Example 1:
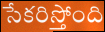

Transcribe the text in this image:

సేకరిస్తోంది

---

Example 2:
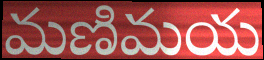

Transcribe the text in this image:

మణిమయ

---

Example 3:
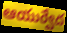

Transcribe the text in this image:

ఆయుర్వేద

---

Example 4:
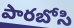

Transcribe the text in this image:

పారబోసి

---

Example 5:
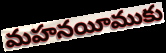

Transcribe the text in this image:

మహనయీముకు